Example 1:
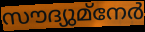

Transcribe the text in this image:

സൗദ്യുമ്നേർ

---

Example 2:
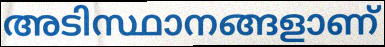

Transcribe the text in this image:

അടിസ്ഥാനങ്ങളാണ്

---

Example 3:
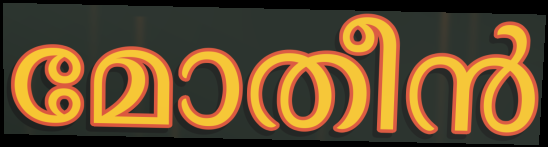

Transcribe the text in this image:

മോതീൻ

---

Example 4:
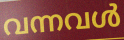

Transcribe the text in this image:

വന്നവൾ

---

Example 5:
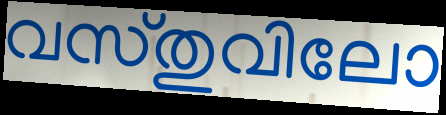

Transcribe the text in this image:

വസ്തുവിലോ